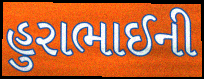
હુરાભાઈની